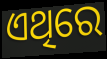
ଏଥିରେ